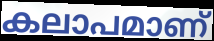
കലാപമാണ്